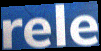
rele